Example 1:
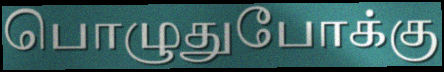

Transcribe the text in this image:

பொழுதுபோக்கு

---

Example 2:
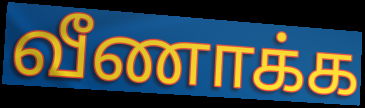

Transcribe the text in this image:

வீணாக்க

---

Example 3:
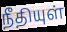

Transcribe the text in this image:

நீதியுள்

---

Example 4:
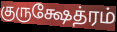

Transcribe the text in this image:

குருக்ஷேத்ரம்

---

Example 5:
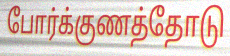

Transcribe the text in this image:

போர்க்குணத்தோடு